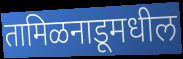
तामिळनाडूमधील